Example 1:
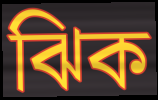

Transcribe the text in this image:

ঝিক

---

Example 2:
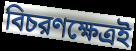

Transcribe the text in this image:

বিচরণক্ষেত্রই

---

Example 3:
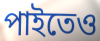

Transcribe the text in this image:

পাইতেও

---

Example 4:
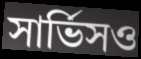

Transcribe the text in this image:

সার্ভিসও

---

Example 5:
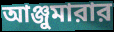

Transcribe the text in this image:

আঞ্জুমারার